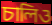
চালিও